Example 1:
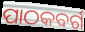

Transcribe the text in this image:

ପାଠକବର୍ଗ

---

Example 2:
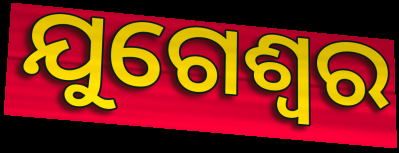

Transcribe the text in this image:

ଯୁଗେଶ୍ଵର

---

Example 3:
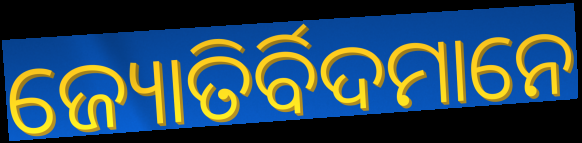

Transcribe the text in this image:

ଜ୍ୟୋତିର୍ବିଦମାନେ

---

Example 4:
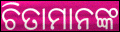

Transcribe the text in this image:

ଚିତାମାନଙ୍କ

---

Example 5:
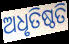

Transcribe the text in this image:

ଅଧୃତିଷ୍ଠତି